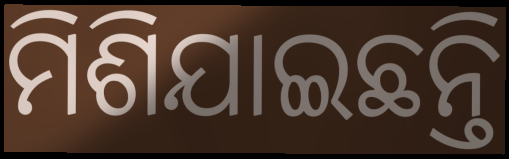
ମିଶିଯାଇଛନ୍ତି